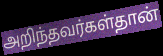
அறிந்தவர்கள்தான்